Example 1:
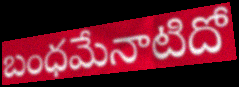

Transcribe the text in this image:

బంధమేనాటిదో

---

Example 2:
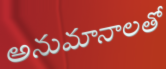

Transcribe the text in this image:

అనుమానాలతో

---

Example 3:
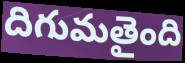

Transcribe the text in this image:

దిగుమతైంది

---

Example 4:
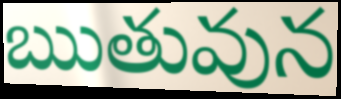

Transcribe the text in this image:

ఋతువున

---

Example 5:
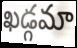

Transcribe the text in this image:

ఖడ్గమా